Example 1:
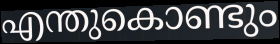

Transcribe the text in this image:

എന്തുകൊണ്ടും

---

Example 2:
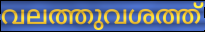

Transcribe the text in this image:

വലത്തുവശത്ത്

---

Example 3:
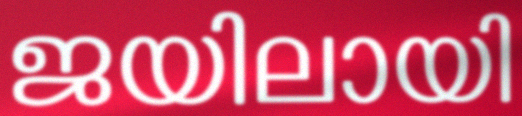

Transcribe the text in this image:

ജയിലായി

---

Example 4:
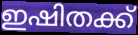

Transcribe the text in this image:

ഇഷിതക്ക്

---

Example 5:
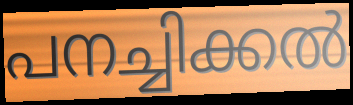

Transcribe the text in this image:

പനച്ചിക്കൽ